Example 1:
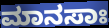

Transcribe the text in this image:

ಮಾನಸಾಃ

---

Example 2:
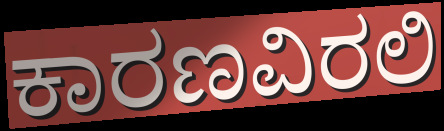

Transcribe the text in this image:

ಕಾರಣವಿರಲಿ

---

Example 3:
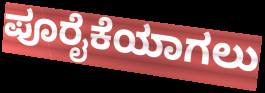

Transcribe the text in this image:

ಪೂರೈಕೆಯಾಗಲು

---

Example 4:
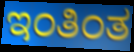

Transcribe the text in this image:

ಇಂತಿಂತ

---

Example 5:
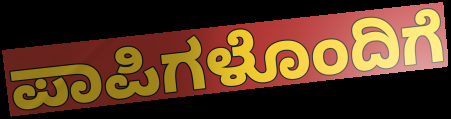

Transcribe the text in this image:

ಪಾಪಿಗಳೊಂದಿಗೆ